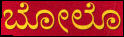
ಬೋಲೊ